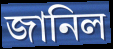
জানিল